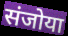
संजोया